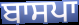
ਬਾਸਪਾ